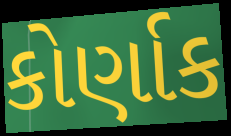
કોર્ણાક